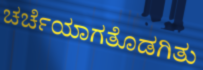
ಚರ್ಚೆಯಾಗತೊಡಗಿತು